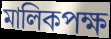
মালিকপক্ষ